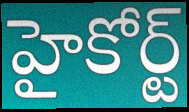
హైకోర్ట్